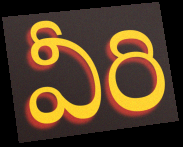
వీరి